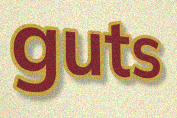
guts